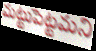
మట్టుపెట్టమని